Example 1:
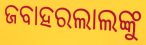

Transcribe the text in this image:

ଜବାହରଲାଲଙ୍କୁ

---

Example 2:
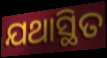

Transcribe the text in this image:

ଯଥାସ୍ଥିତ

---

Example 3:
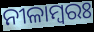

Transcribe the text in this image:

ନୀଳାମ୍ବରଃ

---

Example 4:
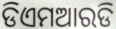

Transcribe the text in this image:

ଡିଏମଆରଡି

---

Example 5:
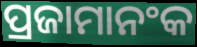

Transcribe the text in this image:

ପ୍ରଜାମାନଂକ